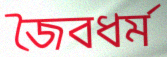
জৈবধর্ম